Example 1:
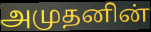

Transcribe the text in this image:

அமுதனின்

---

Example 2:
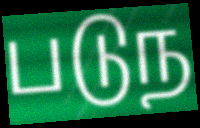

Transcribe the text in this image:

படுந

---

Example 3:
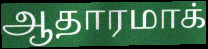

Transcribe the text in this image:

ஆதாரமாக்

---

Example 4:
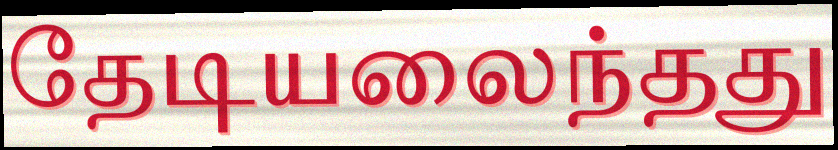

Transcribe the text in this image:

தேடியலைந்தது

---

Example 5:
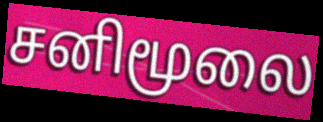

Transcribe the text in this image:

சனிமூலை